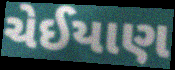
ચેઈયાણ